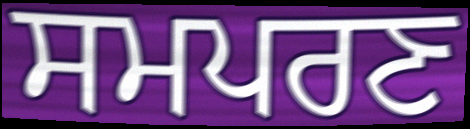
ਸਮਪਰਣ